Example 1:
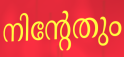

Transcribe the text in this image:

നിന്റേതും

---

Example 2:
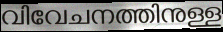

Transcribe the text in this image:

വിവേചനത്തിനുള്ള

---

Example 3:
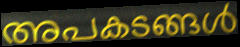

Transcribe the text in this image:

അപകടങ്ങൾ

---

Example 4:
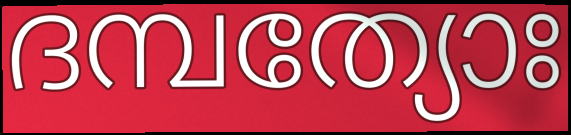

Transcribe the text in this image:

ദമ്പത്യോഃ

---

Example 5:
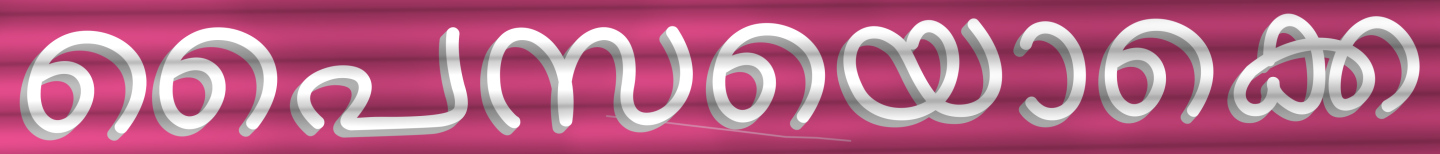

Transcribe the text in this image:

പൈസയൊക്കെ